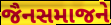
જૈનસમાજને